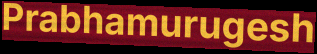
Prabhamurugesh